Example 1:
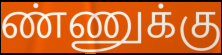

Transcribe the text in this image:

ண்ணுக்கு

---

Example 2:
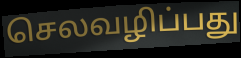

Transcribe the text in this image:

செலவழிப்பது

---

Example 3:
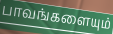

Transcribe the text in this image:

பாவங்களையும்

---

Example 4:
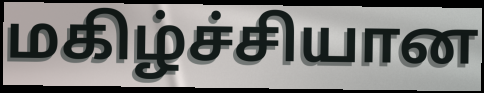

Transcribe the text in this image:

மகிழ்ச்சியான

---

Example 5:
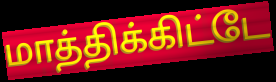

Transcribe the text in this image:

மாத்திக்கிட்டே